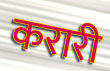
करारी